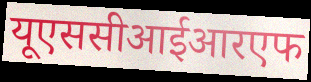
यूएससीआईआरएफ